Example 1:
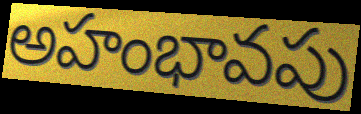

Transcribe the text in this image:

అహంభావపు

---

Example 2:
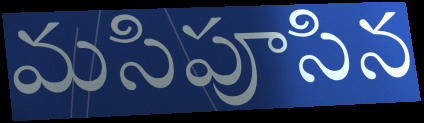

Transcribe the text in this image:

మసిపూసిన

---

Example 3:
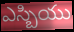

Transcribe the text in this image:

ఎస్బియు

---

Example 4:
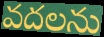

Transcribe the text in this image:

వదలను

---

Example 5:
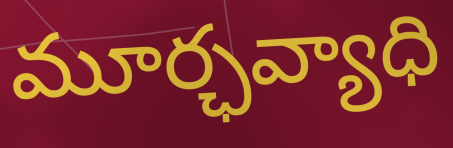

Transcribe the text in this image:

మూర్ఛవ్యాధి